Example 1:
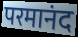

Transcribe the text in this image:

परमानंद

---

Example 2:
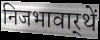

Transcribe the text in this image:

निजभावार्थें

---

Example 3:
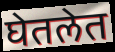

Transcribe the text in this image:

घेतलेत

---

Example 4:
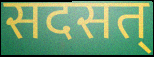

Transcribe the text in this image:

सदसत्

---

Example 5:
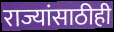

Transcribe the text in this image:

राज्यांसाठीही